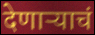
देणाऱ्याचं